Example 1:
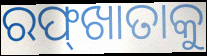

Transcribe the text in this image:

ରଫ୍‌ଖାତାକୁ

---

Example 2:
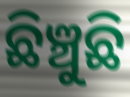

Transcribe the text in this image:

ଛିଞ୍ଚୁଛି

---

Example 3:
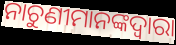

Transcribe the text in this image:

ନାଚୁଣୀମାନଙ୍କଦ୍ୱାରା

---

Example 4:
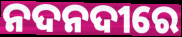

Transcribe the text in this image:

ନଦନଦୀରେ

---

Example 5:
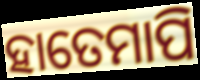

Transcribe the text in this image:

ହାତେମାପି